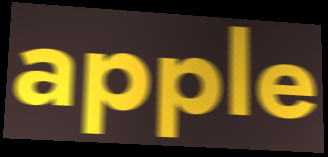
apple